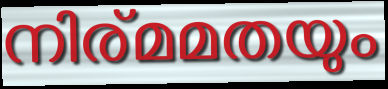
നിര്മമതയും